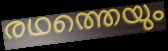
രഥത്തെയും